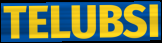
TELUBSI